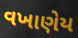
વખાણેય